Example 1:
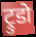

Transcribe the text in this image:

ट्रुडो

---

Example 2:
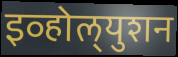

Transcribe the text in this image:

इव्होल्युशन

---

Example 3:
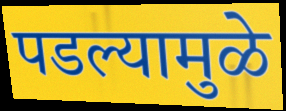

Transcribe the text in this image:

पडल्यामुळे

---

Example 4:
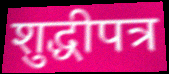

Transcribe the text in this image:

शुद्धीपत्र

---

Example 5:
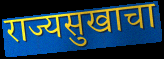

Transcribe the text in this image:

राज्यसुखाचा